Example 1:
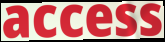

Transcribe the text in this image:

access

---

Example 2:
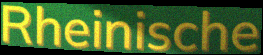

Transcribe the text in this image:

Rheinische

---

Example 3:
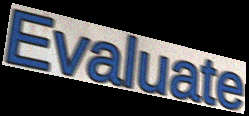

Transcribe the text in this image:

Evaluate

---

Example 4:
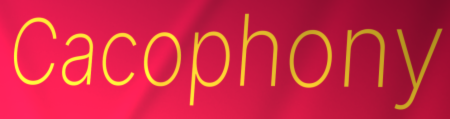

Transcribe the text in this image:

Cacophony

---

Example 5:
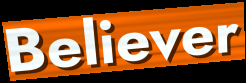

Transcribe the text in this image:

Believer